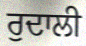
ਰੁਦਾਲੀ